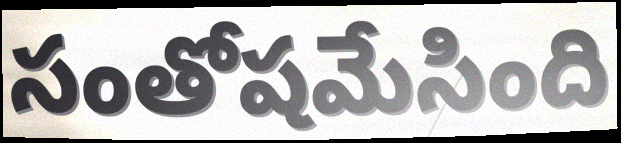
సంతోషమేసింది